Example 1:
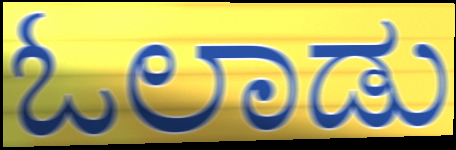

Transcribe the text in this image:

ಓಲಾಡು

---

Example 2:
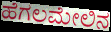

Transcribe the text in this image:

ಹೆಗಲಮೇಲಿನ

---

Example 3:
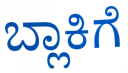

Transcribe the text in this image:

ಬ್ಲಾಕಿಗೆ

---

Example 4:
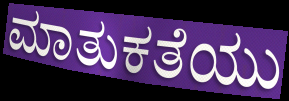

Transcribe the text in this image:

ಮಾತುಕತೆಯು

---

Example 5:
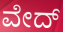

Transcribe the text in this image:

ವೇದ್